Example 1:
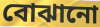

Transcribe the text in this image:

বোঝানো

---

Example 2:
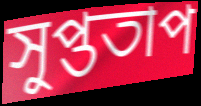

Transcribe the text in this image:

সুপ্ততাপ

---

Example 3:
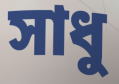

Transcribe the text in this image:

সাধু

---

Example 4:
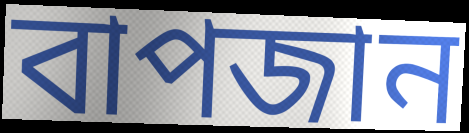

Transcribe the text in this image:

বাপজান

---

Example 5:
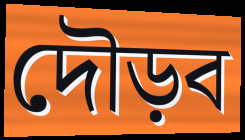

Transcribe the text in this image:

দৌড়ব